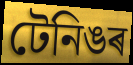
টেনিঙৰ